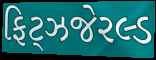
ફિટ્ઝજેરલ્ડ